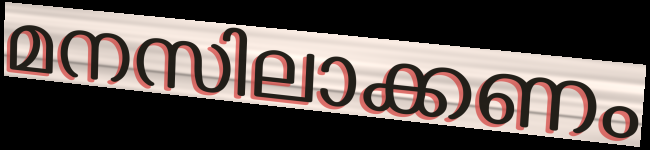
മനസിലാക്കണം